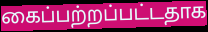
கைப்பற்றப்பட்டதாக